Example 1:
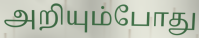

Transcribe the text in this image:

அறியும்போது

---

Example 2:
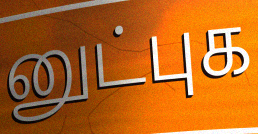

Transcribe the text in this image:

னுட்புக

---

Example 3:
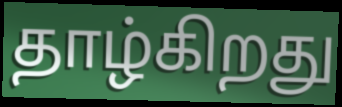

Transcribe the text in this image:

தாழ்கிறது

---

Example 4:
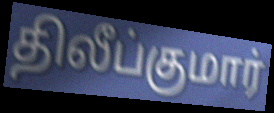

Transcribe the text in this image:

திலீப்குமார்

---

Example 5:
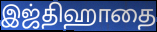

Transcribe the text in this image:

இஜ்திஹாதை